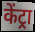
केंट्रा